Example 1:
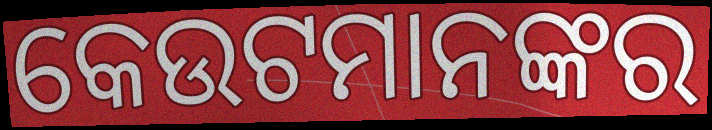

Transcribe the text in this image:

କେଉଟମାନଙ୍କର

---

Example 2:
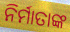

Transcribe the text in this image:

ନିର୍ମାତାଙ୍କ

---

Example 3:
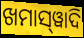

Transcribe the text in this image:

ଖମାସ୍‌ୱାଦି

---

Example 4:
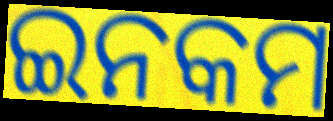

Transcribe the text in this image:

ଇନକମ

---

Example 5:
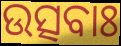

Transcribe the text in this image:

ଉତ୍ସବାଃ